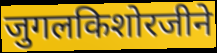
जुगलकिशोरजीने